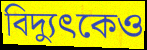
বিদ্যুৎকেও